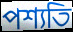
পশ্যতি